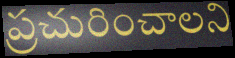
ప్రచురించాలని